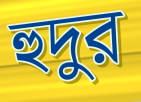
হুদুর